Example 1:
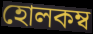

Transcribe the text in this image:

হোলকম্ব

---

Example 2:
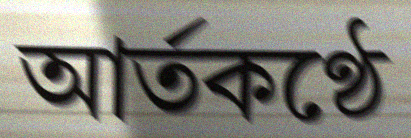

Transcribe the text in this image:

আর্তকণ্ঠে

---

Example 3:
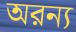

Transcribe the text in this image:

অরন্য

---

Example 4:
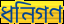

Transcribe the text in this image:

ধনিগণ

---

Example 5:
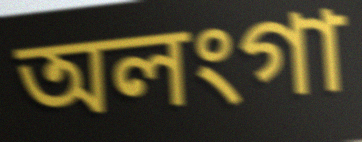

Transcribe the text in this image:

অলংগা